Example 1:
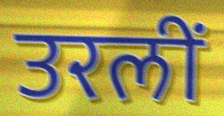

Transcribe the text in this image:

उरलीं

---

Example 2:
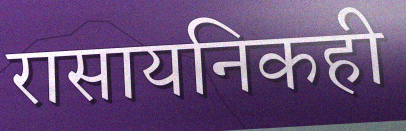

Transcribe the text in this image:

रासायनिकही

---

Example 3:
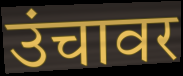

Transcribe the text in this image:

उंचावर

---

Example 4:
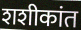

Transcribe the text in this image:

शशीकांत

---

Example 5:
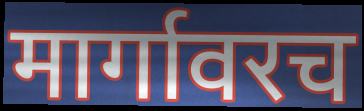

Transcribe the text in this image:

मार्गावरच